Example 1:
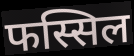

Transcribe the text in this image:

फस्सिल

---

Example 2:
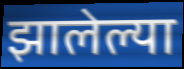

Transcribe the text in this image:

झालेल्या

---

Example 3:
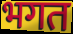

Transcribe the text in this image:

भगत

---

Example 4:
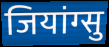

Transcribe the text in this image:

जियांग्सु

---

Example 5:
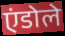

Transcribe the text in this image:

एंडोले